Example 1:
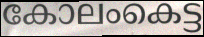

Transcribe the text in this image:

കോലംകെട്ട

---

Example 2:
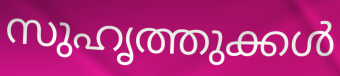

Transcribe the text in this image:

സുഹൃത്തുക്കൾ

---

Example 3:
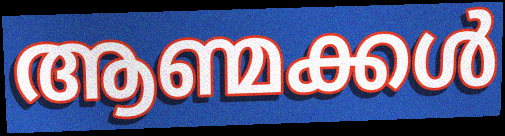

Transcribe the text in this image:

ആണ്മക്കൾ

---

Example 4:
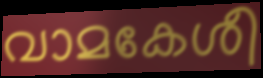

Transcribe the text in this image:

വാമകേശീ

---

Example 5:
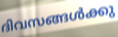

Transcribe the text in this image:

ദിവസങ്ങൾക്കു